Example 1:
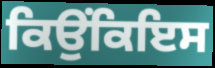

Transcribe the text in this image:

ਕਿਉਂਕਿਇਸ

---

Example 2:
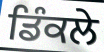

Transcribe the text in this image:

ਡਿੰਕਲੇ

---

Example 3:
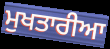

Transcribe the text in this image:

ਮੁਖਤਾਰੀਆ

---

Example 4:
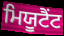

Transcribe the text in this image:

ਮਿਯੂਟੈਂਟ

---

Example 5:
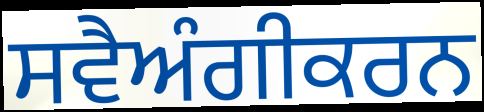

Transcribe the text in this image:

ਸਵੈਅੰਗੀਕਰਨ